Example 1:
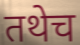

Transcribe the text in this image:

तथेच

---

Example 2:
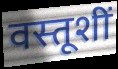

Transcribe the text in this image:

वस्तूशीं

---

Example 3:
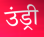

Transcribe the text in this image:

उंड्री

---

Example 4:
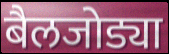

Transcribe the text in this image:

बैलजोड्या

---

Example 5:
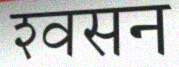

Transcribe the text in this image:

श्वसन